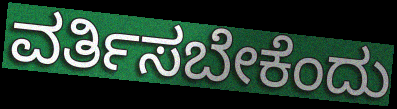
ವರ್ತಿಸಬೇಕೆಂದು